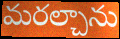
మరల్చాను